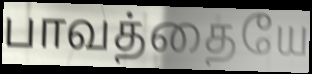
பாவத்தையே